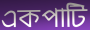
একপাটি